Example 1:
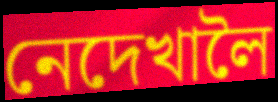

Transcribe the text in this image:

নেদেখালৈ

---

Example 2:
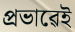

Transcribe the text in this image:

প্ৰভাৱেই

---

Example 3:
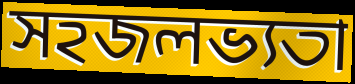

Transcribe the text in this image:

সহজলভ্যতা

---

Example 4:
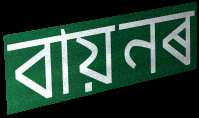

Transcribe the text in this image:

বায়নৰ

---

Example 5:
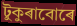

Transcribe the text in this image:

টুকুৰাবোৰে